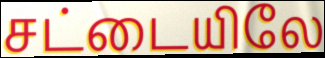
சட்டையிலே